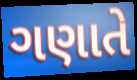
ગણાતે